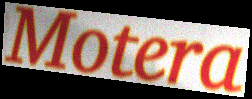
Motera